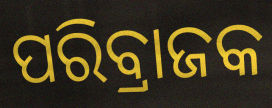
ପରିବ୍ରାଜକ